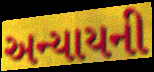
અન્યાયની